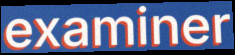
examiner